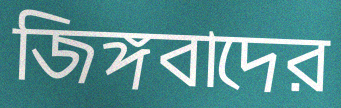
জিঙ্গবাদের